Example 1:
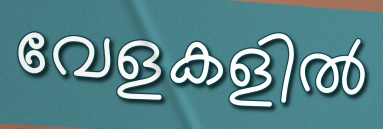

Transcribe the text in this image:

വേളകളിൽ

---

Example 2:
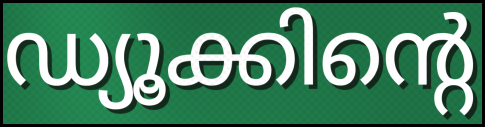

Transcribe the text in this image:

ഡ്യൂക്കിന്റെ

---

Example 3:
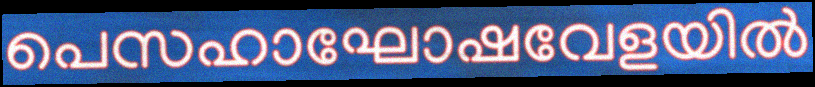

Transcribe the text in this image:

പെസഹാഘോഷവേളയിൽ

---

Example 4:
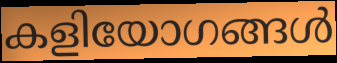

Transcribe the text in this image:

കളിയോഗങ്ങൾ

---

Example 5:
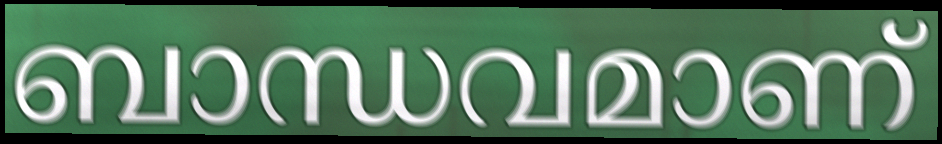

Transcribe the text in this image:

ബാന്ധവമാണ്